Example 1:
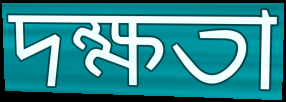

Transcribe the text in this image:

দক্ষতা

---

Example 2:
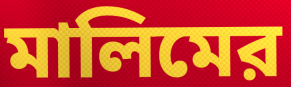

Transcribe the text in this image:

মালিমের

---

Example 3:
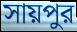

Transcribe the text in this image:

সায়পুর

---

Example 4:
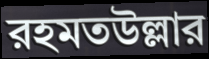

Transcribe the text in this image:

রহমতউল্লার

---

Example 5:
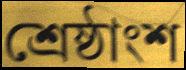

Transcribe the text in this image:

শ্রেষ্ঠাংশ